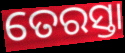
ତେରସ୍ତା